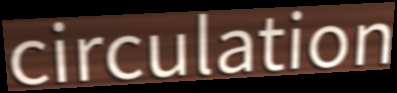
circulation